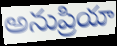
అనుప్రియా